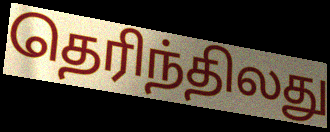
தெரிந்திலது